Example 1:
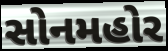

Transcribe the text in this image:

સોનમહોર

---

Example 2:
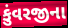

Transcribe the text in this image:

કુંવરજીના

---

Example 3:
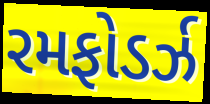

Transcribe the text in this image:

રમફોડર્ઝ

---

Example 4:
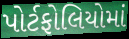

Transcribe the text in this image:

પોર્ટફોલિયોમાં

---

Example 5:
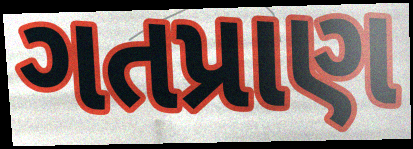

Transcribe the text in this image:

ગતપ્રાણ